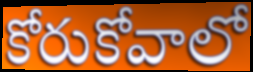
కోరుకోవాలో